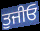
ਤੁਜੀਓ